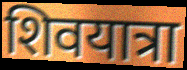
शिवयात्रा